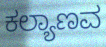
ಕಲ್ಯಾಣವ